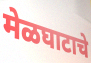
मेळघाटाचे